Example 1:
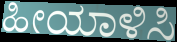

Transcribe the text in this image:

ಹೀಯಾಳಿಸಿ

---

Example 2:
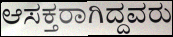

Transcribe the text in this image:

ಆಸಕ್ತರಾಗಿದ್ದವರು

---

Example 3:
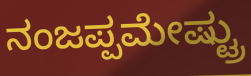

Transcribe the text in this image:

ನಂಜಪ್ಪಮೇಷ್ಟ್ರು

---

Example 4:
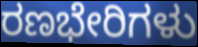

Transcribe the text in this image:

ರಣಭೇರಿಗಳು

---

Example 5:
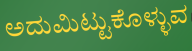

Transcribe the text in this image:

ಅದುಮಿಟ್ಟುಕೊಳ್ಳುವ